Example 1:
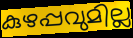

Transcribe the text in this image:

കുഴപ്പവുമില്ല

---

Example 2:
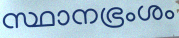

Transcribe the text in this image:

സ്ഥാനഭ്രംശം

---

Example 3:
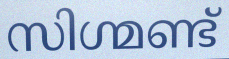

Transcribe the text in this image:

സിഗ്മണ്ട്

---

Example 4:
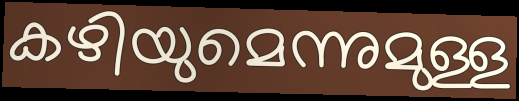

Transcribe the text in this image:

കഴിയുമെന്നുമുള്ള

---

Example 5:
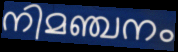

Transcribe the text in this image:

നിമഞ്ചനം